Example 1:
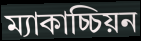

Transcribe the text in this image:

ম্যাকাচ্চিয়ন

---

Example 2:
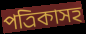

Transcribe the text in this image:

পত্রিকাসহ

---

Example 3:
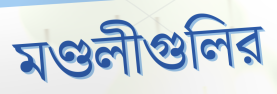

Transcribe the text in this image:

মণ্ডলীগুলির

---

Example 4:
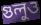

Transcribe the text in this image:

গুলুও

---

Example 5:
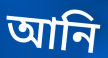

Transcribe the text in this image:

আনি